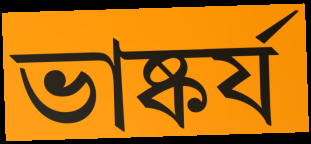
ভাষ্কর্য